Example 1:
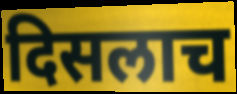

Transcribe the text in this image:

दिसलाच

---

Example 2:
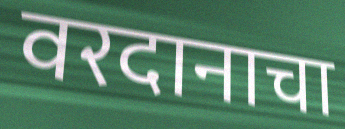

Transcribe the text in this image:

वरदानाचा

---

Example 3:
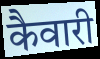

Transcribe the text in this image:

कैवारी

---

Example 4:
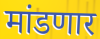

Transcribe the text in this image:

मांडणार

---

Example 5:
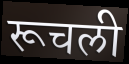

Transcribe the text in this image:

रूचली